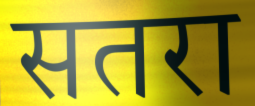
सतरा